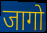
जागो